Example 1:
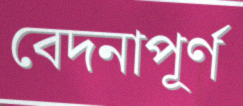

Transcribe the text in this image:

বেদনাপূর্ণ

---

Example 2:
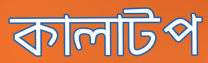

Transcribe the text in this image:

কালাটপ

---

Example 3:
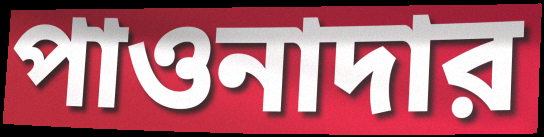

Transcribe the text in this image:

পাওনাদার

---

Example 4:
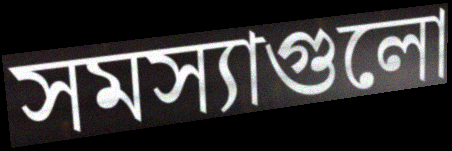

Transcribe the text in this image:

সমস্যাগুলো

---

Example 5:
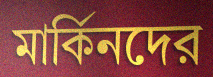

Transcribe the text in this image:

মার্কিনদের